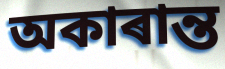
অকাৰান্ত